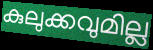
കുലുക്കവുമില്ല